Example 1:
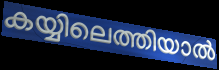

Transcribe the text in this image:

കയ്യിലെത്തിയാൽ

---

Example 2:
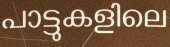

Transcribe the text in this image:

പാട്ടുകളിലെ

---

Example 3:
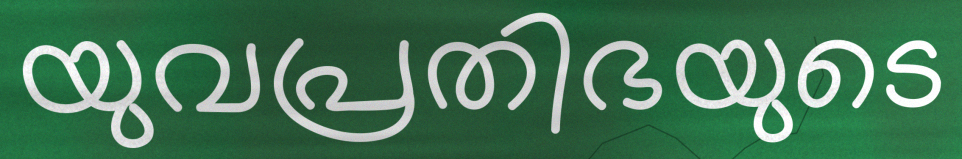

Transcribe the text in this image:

യുവപ്രതിഭയുടെ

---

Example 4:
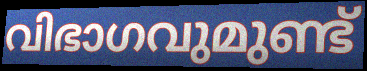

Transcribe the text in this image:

വിഭാഗവുമുണ്ട്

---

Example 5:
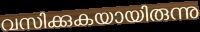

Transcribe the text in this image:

വസിക്കുകയായിരുന്നു